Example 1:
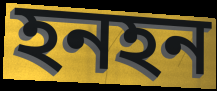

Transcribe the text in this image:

হনহন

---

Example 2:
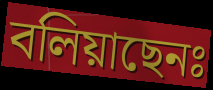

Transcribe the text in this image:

বলিয়াছেনঃ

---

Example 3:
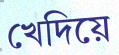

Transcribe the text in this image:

খেদিয়ে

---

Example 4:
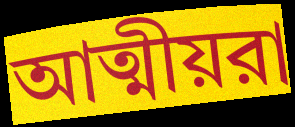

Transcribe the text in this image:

আত্মীয়রা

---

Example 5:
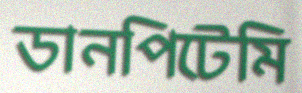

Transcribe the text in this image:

ডানপিটেমি